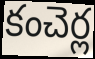
కంచెర్ల